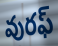
వురఫ్